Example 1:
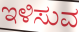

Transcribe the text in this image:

ಇಳಿಸುವ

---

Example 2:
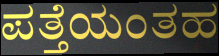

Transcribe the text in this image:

ಪತ್ತೆಯಂತಹ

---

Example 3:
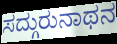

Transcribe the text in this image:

ಸದ್ಗುರುನಾಥನ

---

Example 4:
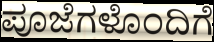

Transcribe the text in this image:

ಪೂಜೆಗಳೊಂದಿಗೆ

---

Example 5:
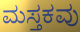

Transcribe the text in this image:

ಮಸ್ತಕವು